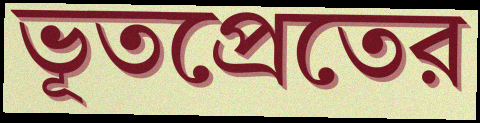
ভূতপ্রেতের